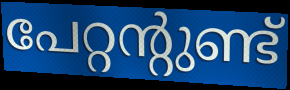
പേറ്റന്റുണ്ട്